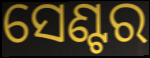
ସେଣ୍ଟର